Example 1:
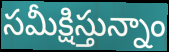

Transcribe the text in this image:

సమీక్షిస్తున్నాం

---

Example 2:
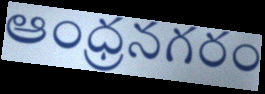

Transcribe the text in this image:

ఆంధ్రనగరం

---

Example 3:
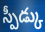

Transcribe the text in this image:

స్పీడ్కు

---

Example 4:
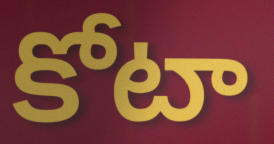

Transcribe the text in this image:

కోటా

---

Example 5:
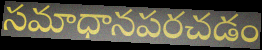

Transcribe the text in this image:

సమాధానపరచడం